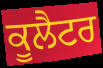
ਕੂਲੈਟਰ